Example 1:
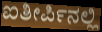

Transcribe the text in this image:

ಐತೀರ್ಪಿನಲ್ಲಿ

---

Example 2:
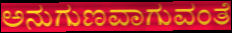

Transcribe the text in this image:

ಅನುಗುಣವಾಗುವಂತೆ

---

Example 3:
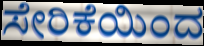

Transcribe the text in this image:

ಸೇರಿಕೆಯಿಂದ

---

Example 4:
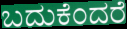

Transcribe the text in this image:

ಬದುಕೆಂದರೆ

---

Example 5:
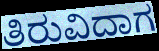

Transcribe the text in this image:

ತಿರುವಿದಾಗ